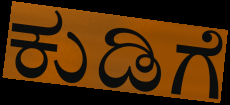
ಕುಡಿಗೆ